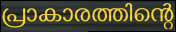
പ്രാകാരത്തിന്റെ